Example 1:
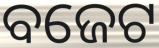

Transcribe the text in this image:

ବଜେଟ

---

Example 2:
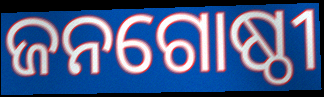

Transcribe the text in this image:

ଜନଗୋଷ୍ଠୀ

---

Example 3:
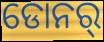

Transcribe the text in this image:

ଡୋନର୍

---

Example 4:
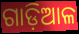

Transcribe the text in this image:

ଗାଡ଼ିଆଳ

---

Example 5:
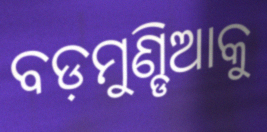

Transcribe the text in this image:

ବଡ଼ମୁଣ୍ଡିଆକୁ